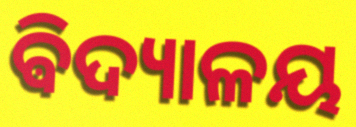
ଵିଦ୍ୟାଳୟ